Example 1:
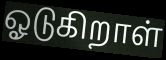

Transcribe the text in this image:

ஓடுகிறாள்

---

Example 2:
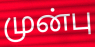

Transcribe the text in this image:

முன்பு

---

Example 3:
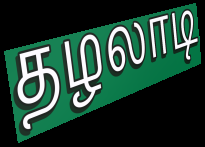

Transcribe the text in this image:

தழலாடி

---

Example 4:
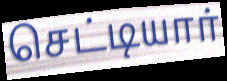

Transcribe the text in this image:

செட்டியார்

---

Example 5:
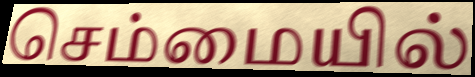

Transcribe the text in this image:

செம்மையில்